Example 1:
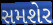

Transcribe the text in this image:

સમશેર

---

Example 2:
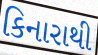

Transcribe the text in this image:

કિનારાથી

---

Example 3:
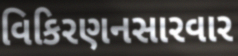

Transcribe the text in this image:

વિકિરણનસારવાર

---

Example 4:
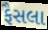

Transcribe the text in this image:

ફૈસલા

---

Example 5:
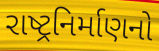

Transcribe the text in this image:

રાષ્ટ્રનિર્માણનો